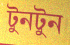
টুনটুন